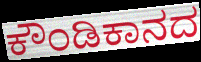
ಕೌಂಡಿಕಾನದ